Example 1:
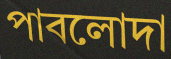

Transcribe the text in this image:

পাবলোদা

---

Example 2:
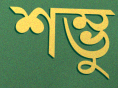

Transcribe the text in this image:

শম্ভু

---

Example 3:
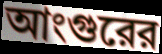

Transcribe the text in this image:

আংগুরের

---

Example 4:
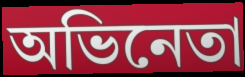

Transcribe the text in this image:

অভিনেতা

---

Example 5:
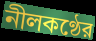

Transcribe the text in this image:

নীলকণ্ঠের